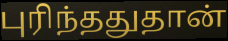
புரிந்ததுதான்